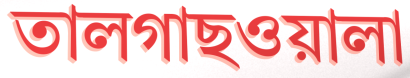
তালগাছওয়ালা